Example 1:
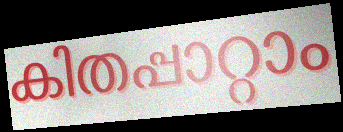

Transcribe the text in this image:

കിതപ്പാറ്റാം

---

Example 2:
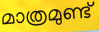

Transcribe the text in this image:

മാത്രമുണ്ട്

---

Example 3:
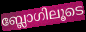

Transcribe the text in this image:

ബ്ലോഗിലൂടെ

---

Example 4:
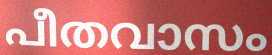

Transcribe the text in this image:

പീതവാസം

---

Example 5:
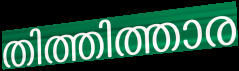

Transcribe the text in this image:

തിത്തിത്താര